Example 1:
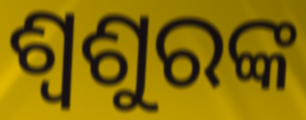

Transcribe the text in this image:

ଶ୍ୱଶୁରଙ୍କ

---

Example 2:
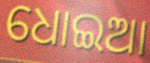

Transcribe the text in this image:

ଧୋଇଆ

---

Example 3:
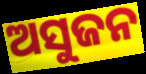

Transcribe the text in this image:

ଅସୁଜନ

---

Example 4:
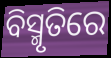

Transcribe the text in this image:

ବିସ୍ମୃତିରେ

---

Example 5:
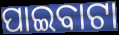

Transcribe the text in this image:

ପାଇବାଟା